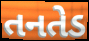
તનતેડ